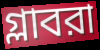
গ্লাবরা